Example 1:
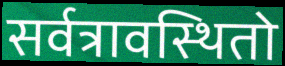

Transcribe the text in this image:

सर्वत्रावस्थितो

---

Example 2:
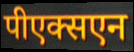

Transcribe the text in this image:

पीएक्सएन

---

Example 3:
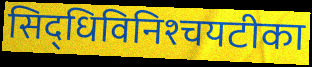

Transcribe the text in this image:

सिद्धिविनिश्चयटीका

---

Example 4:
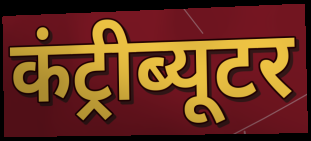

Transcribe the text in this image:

कंट्रीब्यूटर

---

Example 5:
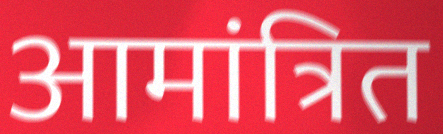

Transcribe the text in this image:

आमांत्रित